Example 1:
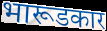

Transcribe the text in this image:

भारूडकार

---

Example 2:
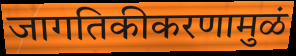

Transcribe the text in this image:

जागतिकीकरणामुळं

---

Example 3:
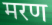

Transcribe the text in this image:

मरण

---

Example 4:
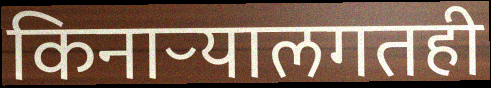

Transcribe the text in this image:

किनाऱ्यालगतही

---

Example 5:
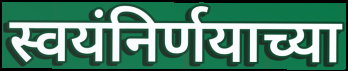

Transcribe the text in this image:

स्वयंनिर्णयाच्या